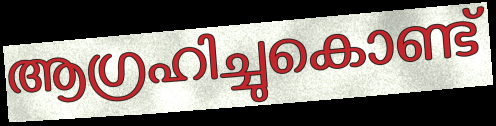
ആഗ്രഹിച്ചുകൊണ്ട്